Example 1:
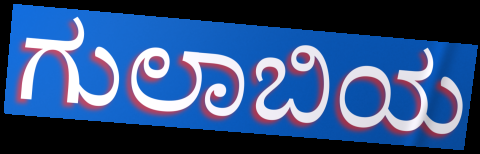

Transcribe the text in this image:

ಗುಲಾಬಿಯ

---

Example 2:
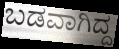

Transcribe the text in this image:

ಬಡವಾಗಿದ್ದ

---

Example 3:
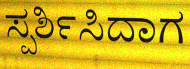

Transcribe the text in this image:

ಸ್ಪರ್ಶಿಸಿದಾಗ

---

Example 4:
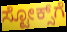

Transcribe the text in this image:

ಸ್ಟೋಕ್ಸ್‌ಗೆ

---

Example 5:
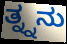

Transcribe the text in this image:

ತ್ನ್ನನು